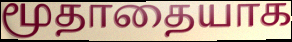
மூதாதையாக